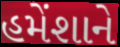
હમેંશાને